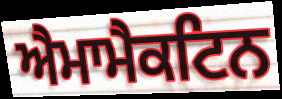
ਐਮਾਮੈਕਟਿਨ